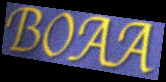
BOAA